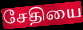
சேதியை